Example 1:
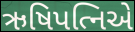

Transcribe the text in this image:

ઋષિપત્નિએ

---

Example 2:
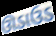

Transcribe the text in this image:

ઊડાઉડ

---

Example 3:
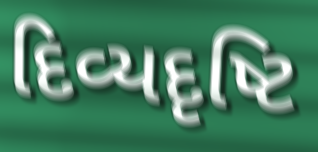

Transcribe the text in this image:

દિવ્યદૃષ્ટિ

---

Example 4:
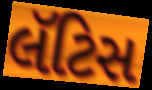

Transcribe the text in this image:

લૅટિસ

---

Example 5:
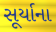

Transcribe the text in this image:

સૂર્યાના